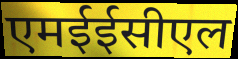
एमईईसीएल